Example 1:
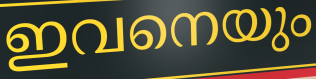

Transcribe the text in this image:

ഇവനെയും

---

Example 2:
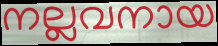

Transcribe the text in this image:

നല്ലവനായ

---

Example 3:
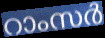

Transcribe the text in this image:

റാംസർ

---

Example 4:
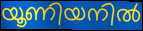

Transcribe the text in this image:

യൂണിയനിൽ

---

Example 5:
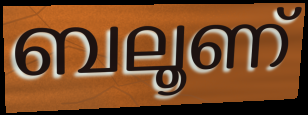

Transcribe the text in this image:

ബലൂണ്